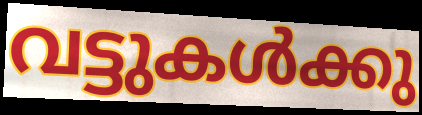
വട്ടുകൾക്കു